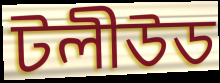
টলীউড